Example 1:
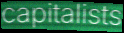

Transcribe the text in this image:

capitalists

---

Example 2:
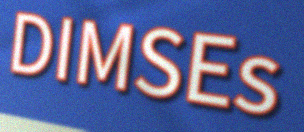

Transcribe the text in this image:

DIMSEs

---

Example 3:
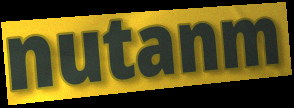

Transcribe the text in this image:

nutanm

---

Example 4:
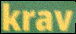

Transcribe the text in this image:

krav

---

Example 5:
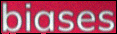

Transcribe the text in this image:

biases